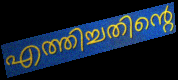
എത്തിച്ചതിന്റെ